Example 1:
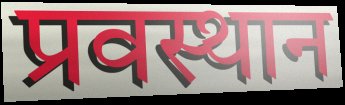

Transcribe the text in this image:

प्रवस्थान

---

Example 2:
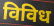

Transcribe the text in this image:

विविध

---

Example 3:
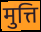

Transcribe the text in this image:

मुत्ति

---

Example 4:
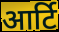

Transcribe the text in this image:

आर्टि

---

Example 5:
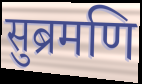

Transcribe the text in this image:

सुब्रमणि